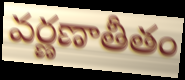
వర్ణణాతీతం